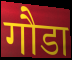
गौडा